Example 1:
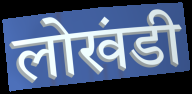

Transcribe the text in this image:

लोखंडी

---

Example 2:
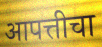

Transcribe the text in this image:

आपत्तीचा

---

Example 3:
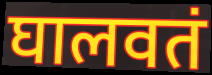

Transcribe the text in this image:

घालवतं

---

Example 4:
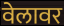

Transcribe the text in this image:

वेलावर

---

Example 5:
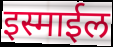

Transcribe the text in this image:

इस्माईल